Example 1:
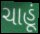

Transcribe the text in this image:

ચાહૂં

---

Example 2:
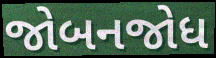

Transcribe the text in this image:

જોબનજોધ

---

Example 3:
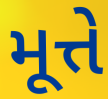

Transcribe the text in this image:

મૂત્તે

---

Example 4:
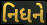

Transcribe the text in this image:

નિધને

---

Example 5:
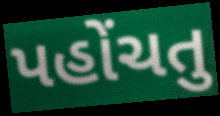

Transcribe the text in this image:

પહોંચતુ